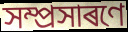
সম্প্ৰসাৰণে